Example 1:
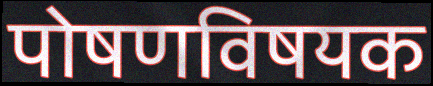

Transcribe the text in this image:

पोषणविषयक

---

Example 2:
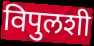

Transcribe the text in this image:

विपुलशी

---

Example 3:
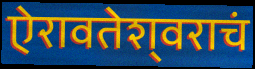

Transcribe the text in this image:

ऐरावतेश्वराचं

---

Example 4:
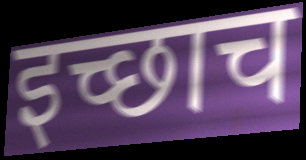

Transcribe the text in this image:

इच्छाच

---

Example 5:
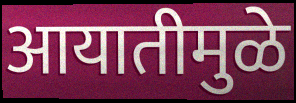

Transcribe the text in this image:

आयातीमुळे